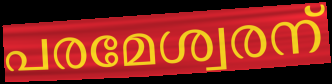
പരമേശ്വരന്